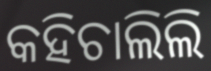
କହିଚାଲିଲି